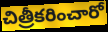
చిత్రీకరించారో